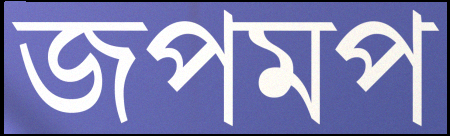
জপমপ